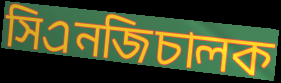
সিএনজিচালক